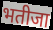
भतीजा